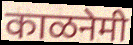
काळनेमी